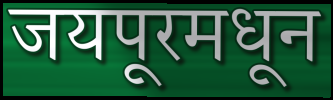
जयपूरमधून